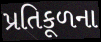
પ્રતિકૂળના